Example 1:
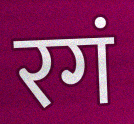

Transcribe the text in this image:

रगं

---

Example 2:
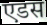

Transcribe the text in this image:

एडस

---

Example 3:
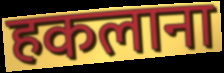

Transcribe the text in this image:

हकलाना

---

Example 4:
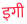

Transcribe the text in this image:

इगी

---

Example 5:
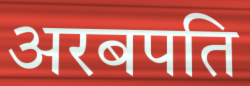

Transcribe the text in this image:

अरबपति